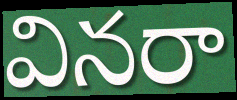
వినరా